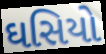
ઘસિયો